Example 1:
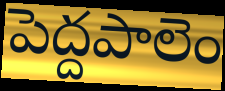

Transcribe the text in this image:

పెద్దపాలెం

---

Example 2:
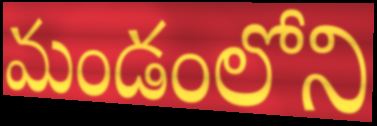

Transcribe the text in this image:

మండంలోని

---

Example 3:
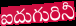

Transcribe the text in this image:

ఐదుగురినీ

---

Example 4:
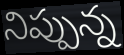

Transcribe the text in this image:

నిప్పున్న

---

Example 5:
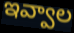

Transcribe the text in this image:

ఇవ్వాల